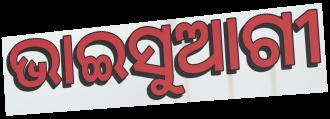
ଭାଇସୁଆଗୀ